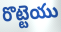
రొట్టెయు